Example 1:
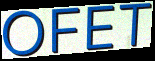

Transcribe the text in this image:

OFET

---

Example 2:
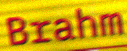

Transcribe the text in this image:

Brahm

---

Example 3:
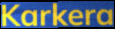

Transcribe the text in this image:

Karkera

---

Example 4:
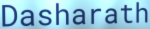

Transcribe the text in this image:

Dasharath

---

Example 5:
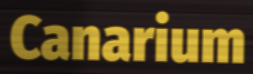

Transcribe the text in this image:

Canarium